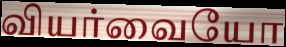
வியர்வையோ